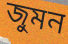
জুমন